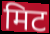
मिट